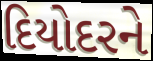
દિયોદરને